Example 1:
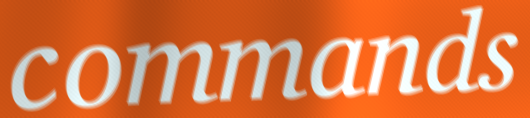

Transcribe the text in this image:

commands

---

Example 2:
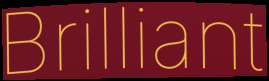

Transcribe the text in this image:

Brilliant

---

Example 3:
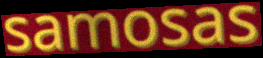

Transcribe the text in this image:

samosas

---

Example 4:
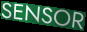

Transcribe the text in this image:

SENSOR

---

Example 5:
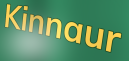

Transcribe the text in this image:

Kinnaur